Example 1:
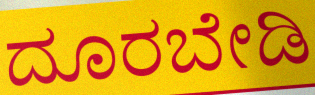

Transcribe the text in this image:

ದೂರಬೇಡಿ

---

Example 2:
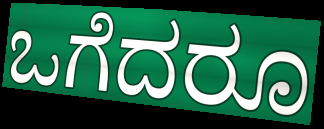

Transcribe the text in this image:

ಒಗೆದರೂ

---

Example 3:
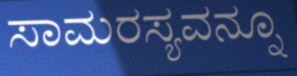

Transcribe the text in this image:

ಸಾಮರಸ್ಯವನ್ನೂ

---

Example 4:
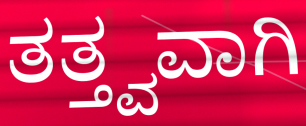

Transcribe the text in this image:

ತತ್ತ್ವವಾಗಿ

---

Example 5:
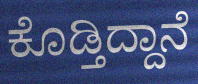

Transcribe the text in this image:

ಕೊಡ್ತಿದ್ದಾನೆ